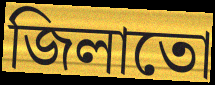
জিলাতো